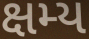
ક્ષમ્ય